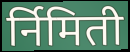
र्निमिती